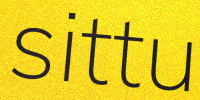
sittu